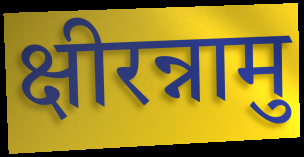
क्षीरन्नामु